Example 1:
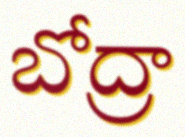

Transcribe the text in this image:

బోద్రా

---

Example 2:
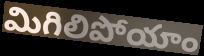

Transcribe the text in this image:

మిగిలిపోయాం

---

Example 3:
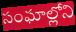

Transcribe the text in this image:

సంఘాల్లోని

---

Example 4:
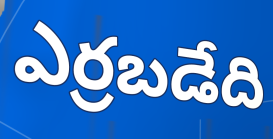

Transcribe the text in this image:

ఎర్రబడేది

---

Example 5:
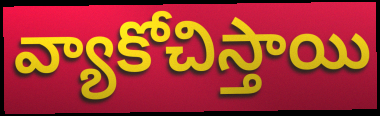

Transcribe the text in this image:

వ్యాకోచిస్తాయి